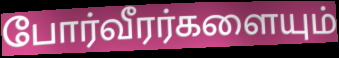
போர்வீரர்களையும்